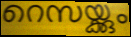
റെസയ്ക്കും